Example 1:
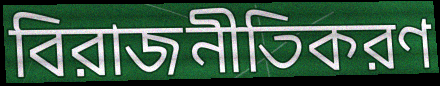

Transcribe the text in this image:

বিরাজনীতিকরণ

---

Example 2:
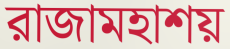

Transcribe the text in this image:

রাজামহাশয়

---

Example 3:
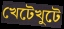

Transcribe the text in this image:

খেটেখুটে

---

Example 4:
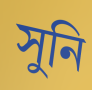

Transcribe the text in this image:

সুনি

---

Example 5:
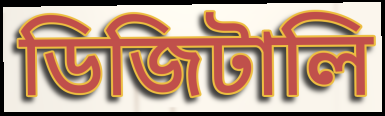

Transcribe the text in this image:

ডিজিটালি